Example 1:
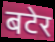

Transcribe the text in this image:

बटेर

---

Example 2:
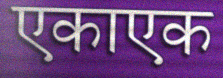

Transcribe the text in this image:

एकाएक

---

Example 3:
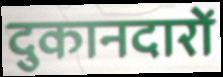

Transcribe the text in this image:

दुकानदारों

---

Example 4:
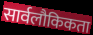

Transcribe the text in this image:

सार्वलौकिकता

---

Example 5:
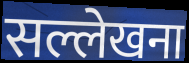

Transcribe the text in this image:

सल्लेखना